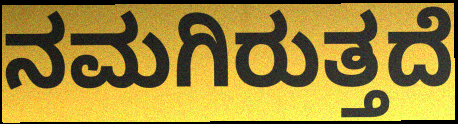
ನಮಗಿರುತ್ತದೆ